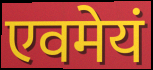
एवमेयं